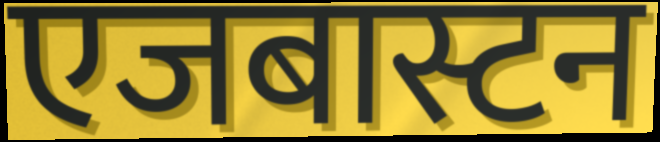
एजबास्टन